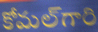
కోమల్‌గారి